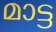
മാട്ട